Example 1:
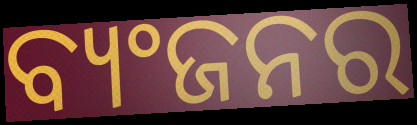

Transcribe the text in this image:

ବ୍ୟଂଜନର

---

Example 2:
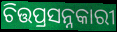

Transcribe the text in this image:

ଚିତ୍ତପ୍ରସନ୍ନକାରୀ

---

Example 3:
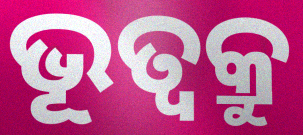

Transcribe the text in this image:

ଭୂତ୍ଵକ୍ରୁ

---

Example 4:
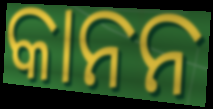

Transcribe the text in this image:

କାନନ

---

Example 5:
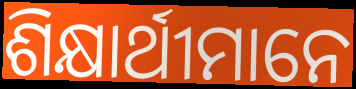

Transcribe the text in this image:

ଶିକ୍ଷାର୍ଥୀମାନେ